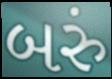
બરું